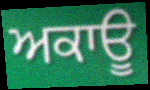
ਅਕਾਊ